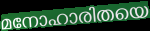
മനോഹാരിതയെ